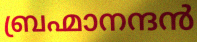
ബ്രഹ്മാനന്ദൻ